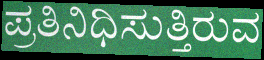
ಪ್ರತಿನಿಧಿಸುತ್ತಿರುವ